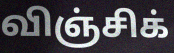
விஞ்சிக்